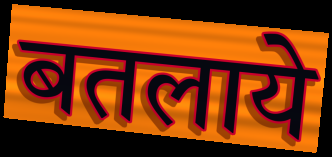
बतलाये